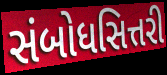
સંબોધસિત્તરી